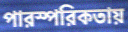
পারস্পরিকতায়